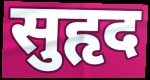
सुहृद